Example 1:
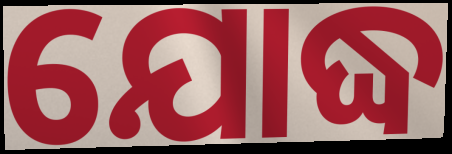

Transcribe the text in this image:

ଯୋଦ୍ଧ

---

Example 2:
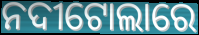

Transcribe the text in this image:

ନଦୀଟୋଲାରେ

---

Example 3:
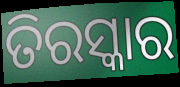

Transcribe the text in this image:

ତିରସ୍କାର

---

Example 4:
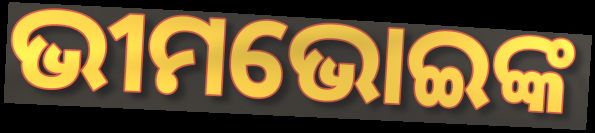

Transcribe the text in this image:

ଭୀମଭୋଇଙ୍କ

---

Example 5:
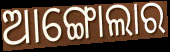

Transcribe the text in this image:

ଆଙ୍ଗୋଲାର